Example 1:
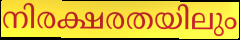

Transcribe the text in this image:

നിരക്ഷരതയിലും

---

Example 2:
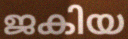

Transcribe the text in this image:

ജകിയ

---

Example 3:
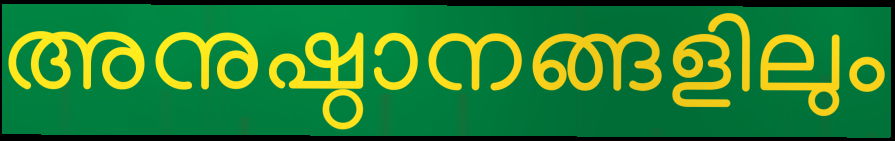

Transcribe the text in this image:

അനുഷ്ഠാനങ്ങളിലും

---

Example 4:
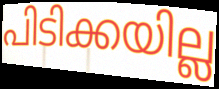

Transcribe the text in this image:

പിടിക്കയില്ല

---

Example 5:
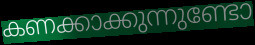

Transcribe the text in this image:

കണക്കാക്കുന്നുണ്ടോ